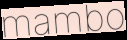
mambo